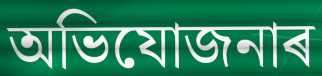
অভিযোজনাৰ